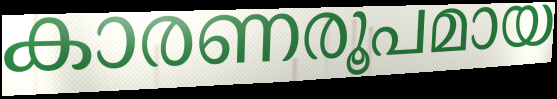
കാരണരൂപമായ